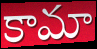
కామా